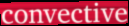
convective